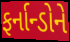
ફર્નાન્ડોને